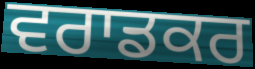
ਵਰਾਡਕਰ